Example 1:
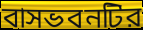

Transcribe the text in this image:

বাসভবনটির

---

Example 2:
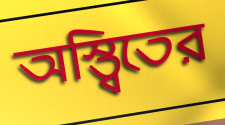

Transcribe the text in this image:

অস্ত্বিতের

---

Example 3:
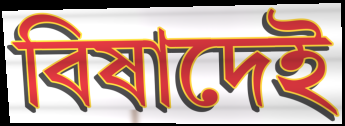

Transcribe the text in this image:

বিষাদেই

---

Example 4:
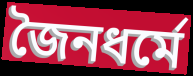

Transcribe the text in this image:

জৈনধর্মে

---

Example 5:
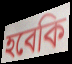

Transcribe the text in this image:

হবেকি